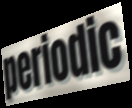
periodic